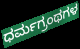
ಧರ್ಮಗ್ರಂಥಗಳ